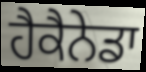
ਹੈਕੈਨੇਡਾ